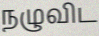
நழுவிட